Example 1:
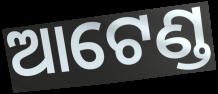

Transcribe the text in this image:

ଆଟେଣ୍ଡ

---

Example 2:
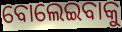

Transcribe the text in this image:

ବୋଲେଇବାକୁ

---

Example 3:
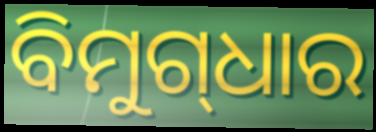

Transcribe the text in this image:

ବିମୁଗ୍‌ଧାର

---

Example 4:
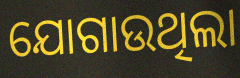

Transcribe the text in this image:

ଯୋଗାଉଥିଲା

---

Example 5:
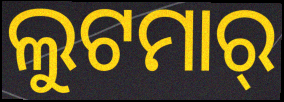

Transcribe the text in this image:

ଲୁଟମାର୍